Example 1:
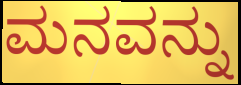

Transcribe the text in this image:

ಮನವನ್ನು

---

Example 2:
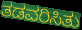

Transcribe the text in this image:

ತಡವರಿಸಿತು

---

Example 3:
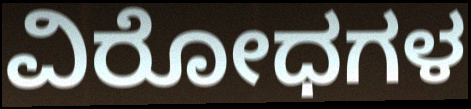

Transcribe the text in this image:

ವಿರೋಧಗಳ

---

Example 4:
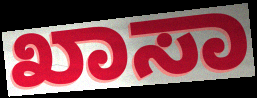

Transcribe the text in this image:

ಖಾಸಾ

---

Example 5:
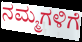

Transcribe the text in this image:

ನಮ್ಮಗಳಿಗೆ